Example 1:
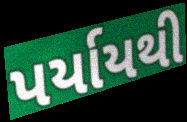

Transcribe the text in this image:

પર્યાયથી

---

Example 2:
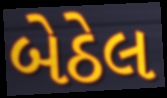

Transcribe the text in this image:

બેઠેલ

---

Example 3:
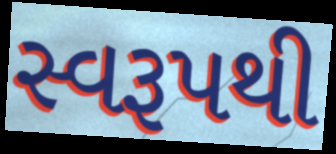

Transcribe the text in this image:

સ્વરૂપથી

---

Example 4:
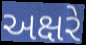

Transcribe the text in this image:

અક્ષરે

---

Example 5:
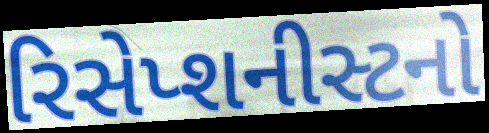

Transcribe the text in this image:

રિસેપ્શનીસ્ટનો